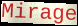
Mirage